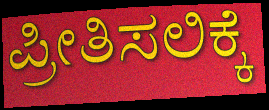
ಪ್ರೀತಿಸಲಿಕ್ಕೆ